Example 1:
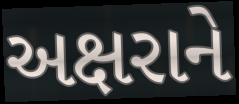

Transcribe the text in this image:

અક્ષરાને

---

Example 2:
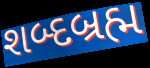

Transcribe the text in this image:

શબ્દબ્રહ્મ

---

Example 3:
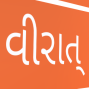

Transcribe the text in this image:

વીરાત્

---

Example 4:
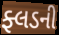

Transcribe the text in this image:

ફ્લડની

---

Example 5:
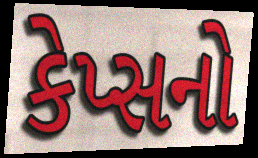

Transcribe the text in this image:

કેપ્સનો